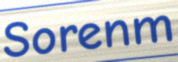
Sorenm